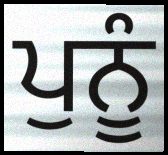
ਪੁਨੂੰ